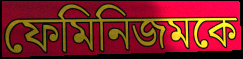
ফেমিনিজমকে